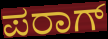
ಪರಾಗ್